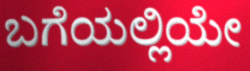
ಬಗೆಯಲ್ಲಿಯೇ